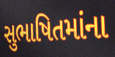
સુભાષિતમાંના